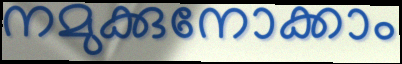
നമുക്കുനോക്കാം